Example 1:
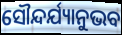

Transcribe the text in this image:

ସୌନ୍ଦର୍ଯ୍ୟାନୁଭବ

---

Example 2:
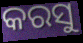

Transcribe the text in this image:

କରସୁ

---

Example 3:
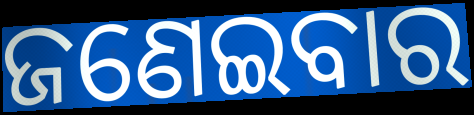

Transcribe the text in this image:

ଜଣେଇବାର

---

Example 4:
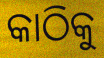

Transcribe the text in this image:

କାଠିକୁ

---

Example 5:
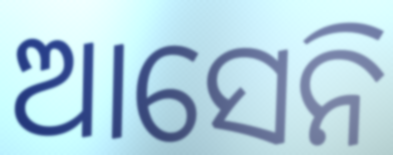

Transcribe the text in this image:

ଆସେନି